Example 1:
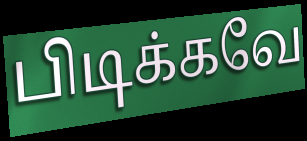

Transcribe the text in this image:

பிடிக்கவே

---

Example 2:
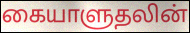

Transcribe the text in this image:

கையாளுதலின்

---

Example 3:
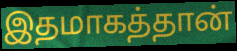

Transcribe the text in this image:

இதமாகத்தான்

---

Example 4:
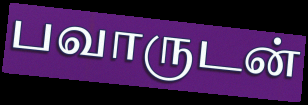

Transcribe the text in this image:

பவாருடன்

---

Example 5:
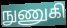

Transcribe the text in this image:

நுணுகி